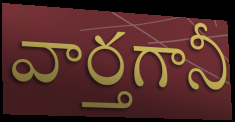
వార్తగానీ